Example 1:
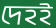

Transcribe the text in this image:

দেহই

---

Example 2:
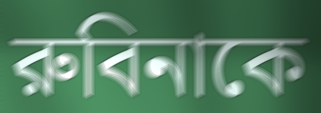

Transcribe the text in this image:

রুবিনাকে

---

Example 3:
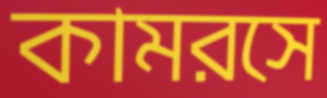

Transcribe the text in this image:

কামরসে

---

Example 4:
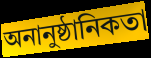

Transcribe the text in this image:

অনানুষ্ঠানিকতা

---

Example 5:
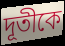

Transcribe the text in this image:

দূতীকে